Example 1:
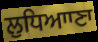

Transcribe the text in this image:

ਲੁਧਿਆਾਣਾ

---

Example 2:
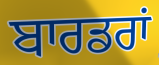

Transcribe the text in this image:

ਬਾਰਡਰਾਂ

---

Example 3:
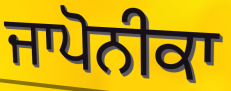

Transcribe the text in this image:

ਜਾਪੋਨੀਕਾ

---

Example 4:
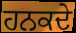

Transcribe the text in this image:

ਹਨਕਦੇ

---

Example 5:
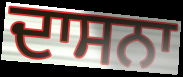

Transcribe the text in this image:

ਦਾਸਨਾ